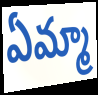
ఏమ్మా